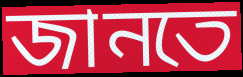
জানতে